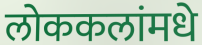
लोककलांमधे